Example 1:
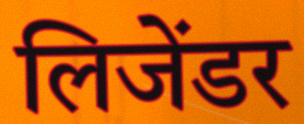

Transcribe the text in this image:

लिजेंडर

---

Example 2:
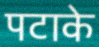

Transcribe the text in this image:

पटाके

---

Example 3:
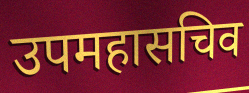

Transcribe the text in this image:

उपमहासचिव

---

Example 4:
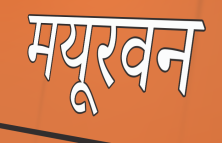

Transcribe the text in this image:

मयूरवन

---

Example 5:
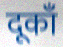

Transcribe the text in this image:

दूकाँ